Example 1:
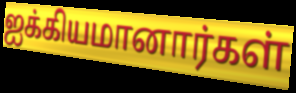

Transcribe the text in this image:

ஐக்கியமானார்கள்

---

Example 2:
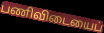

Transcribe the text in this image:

பணிவிடையைப்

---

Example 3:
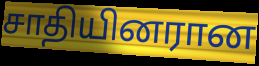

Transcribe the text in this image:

சாதியினரான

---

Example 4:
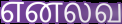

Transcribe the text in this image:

எனலவ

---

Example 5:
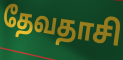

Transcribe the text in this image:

தேவதாசி